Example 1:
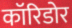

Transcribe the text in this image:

कॉरिडोर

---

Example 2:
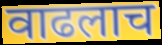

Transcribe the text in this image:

वाढलाच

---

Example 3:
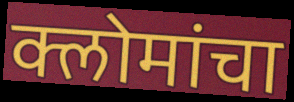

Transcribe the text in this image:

क्लोमांचा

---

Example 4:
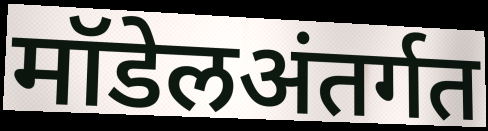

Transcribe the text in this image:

मॉडेलअंतर्गत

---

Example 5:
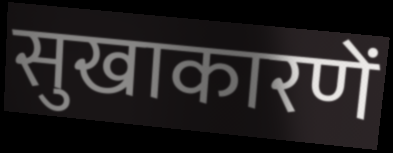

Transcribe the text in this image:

सुखाकारणें